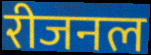
रीजनल